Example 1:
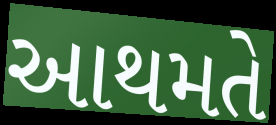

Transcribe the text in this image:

આથમતે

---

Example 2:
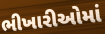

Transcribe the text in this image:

ભીખારીઓમાં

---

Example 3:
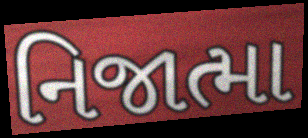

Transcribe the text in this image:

નિજાત્મા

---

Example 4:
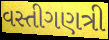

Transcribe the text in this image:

વસ્તીગણત્રી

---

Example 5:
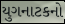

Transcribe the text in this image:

યુગનાટકનો